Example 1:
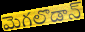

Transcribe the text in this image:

మెగలొడాన్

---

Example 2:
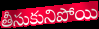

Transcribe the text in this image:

తీసుకునిపోయి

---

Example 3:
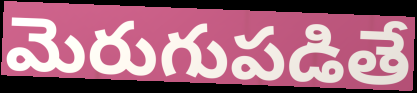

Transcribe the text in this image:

మెరుగుపడితే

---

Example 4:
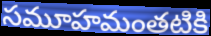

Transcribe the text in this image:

సమూహమంతటికి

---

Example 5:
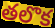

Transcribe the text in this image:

తలొక